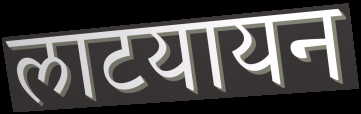
लाटयायन